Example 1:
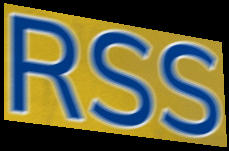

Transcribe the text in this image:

RSS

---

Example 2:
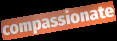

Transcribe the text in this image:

compassionate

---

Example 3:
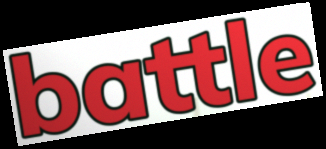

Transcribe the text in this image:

battle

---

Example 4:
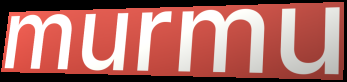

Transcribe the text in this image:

murmu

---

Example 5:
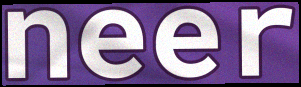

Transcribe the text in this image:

neer